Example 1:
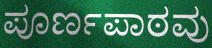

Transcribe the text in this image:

ಪೂರ್ಣಪಾಠವು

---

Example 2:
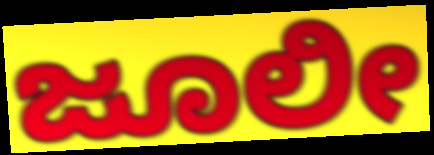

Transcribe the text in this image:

ಜೂಲೀ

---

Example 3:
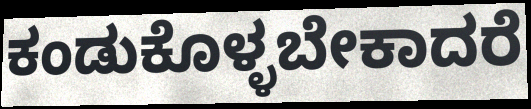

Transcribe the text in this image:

ಕಂಡುಕೊಳ್ಳಬೇಕಾದರೆ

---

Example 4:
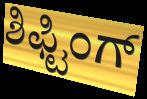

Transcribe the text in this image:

ಶಿಫ್ಟಿಂಗ್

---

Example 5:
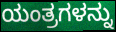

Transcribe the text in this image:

ಯಂತ್ರಗಳನ್ನು